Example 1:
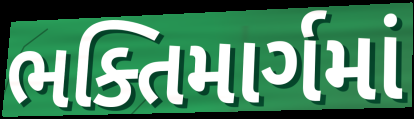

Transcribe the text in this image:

ભક્તિમાર્ગમાં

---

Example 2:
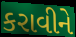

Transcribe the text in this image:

કરાવીને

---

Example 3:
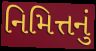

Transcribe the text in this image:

નિમિત્તનું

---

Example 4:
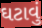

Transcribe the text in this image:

ઘટાવું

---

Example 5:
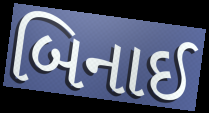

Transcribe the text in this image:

બિનાઈ